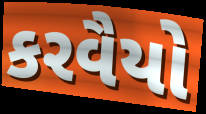
કરવૈયો